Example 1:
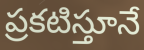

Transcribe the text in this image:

ప్రకటిస్తూనే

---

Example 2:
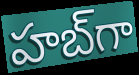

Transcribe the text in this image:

హబ్‌గా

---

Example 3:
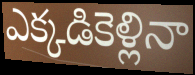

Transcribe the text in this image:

ఎక్కడికెళ్లినా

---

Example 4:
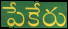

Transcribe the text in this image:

పేకేరు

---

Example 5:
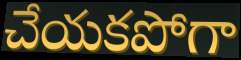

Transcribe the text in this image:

చేయకపోగా